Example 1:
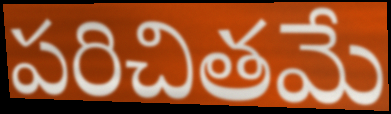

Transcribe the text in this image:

పరిచితమే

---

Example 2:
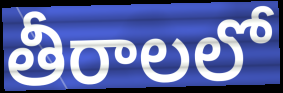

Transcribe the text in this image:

తీరాలలో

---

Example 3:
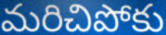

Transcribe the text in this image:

మరిచిపోకు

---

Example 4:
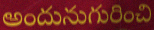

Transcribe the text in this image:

అందునుగురించి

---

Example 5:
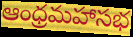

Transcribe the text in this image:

ఆంధ్రమహాసభ